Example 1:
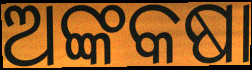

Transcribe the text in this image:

ଅଙ୍କକଷା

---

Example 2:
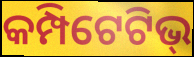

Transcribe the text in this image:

କମ୍ପିଟେଟିଭ୍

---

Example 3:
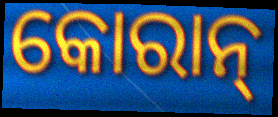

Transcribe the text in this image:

କୋରାନ୍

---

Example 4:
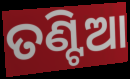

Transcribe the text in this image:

ତଣ୍ଟିଆ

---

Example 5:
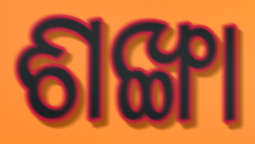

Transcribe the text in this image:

ଶଙ୍ଖା